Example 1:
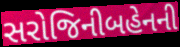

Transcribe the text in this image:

સરોજિનીબહેનની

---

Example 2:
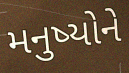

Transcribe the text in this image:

મનુષ્યોને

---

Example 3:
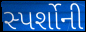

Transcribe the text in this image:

સ્પર્શોની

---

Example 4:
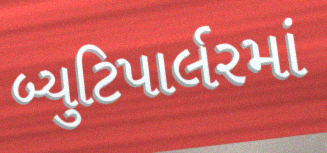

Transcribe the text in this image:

બ્યુટિપાર્લરમાં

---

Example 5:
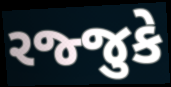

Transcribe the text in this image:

રજ્જુકે